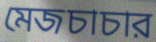
মেজচাচার